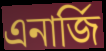
এনার্জি